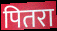
पितरा